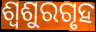
ଶ୍ୱଶୁରଗୃହ